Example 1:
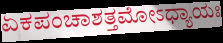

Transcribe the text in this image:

ಏಕಪಂಚಾಶತ್ತಮೋಽಧ್ಯಾಯಃ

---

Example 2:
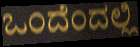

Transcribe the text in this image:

ಒಂದೆಂದಲ್ಲಿ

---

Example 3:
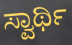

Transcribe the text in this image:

ಸ್ವಾರ್ಥಿ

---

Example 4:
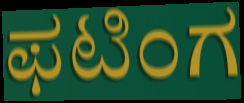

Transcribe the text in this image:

ಫಟಿಂಗ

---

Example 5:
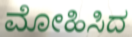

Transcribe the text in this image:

ಮೋಹಿಸಿದ